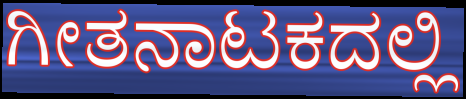
ಗೀತನಾಟಕದಲ್ಲಿ